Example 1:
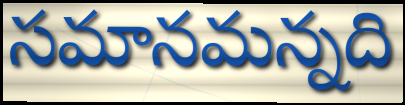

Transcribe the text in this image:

సమానమన్నది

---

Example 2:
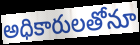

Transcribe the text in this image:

అధికారులతోనూ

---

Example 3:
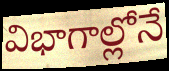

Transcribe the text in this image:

విభాగాల్లోనే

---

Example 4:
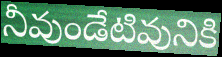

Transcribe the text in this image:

నీవుండేటివునికి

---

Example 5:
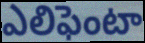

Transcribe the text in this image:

ఎలిఫెంటా